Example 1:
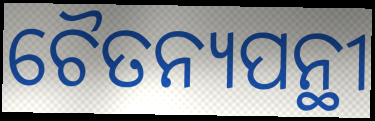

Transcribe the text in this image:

ଚୈତନ୍ୟପନ୍ଥୀ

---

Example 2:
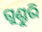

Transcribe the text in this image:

ଗୁଣ୍ଡୁରି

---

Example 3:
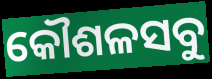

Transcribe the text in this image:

କୌଶଳସବୁ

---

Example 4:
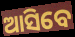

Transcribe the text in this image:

ଆସିବେ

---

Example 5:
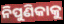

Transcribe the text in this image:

ନିପୁଣିକାକୁ